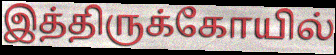
இத்திருக்கோயில்